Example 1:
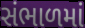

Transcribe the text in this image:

સંભાળમાં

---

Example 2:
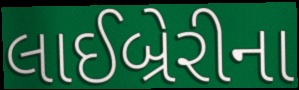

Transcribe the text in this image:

લાઈબ્રેરીના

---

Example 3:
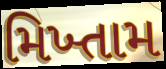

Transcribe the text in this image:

મિખ્તામ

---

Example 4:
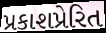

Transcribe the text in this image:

પ્રકાશપ્રેરિત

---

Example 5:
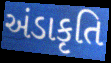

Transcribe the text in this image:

અંડાકૃતિ